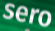
sero